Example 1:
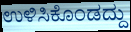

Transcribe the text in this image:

ಉಳಿಸಿಕೊಂಡದ್ದು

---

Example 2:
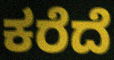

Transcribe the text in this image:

ಕರೆದೆ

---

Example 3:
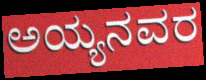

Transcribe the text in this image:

ಅಯ್ಯನವರ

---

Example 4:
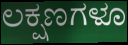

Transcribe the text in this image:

ಲಕ್ಷಣಗಳೂ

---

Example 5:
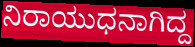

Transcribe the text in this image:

ನಿರಾಯುಧನಾಗಿದ್ದ